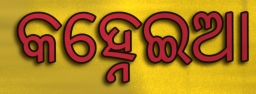
କହ୍ନେଇଆ